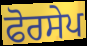
ਫੋਰਸੇਪ